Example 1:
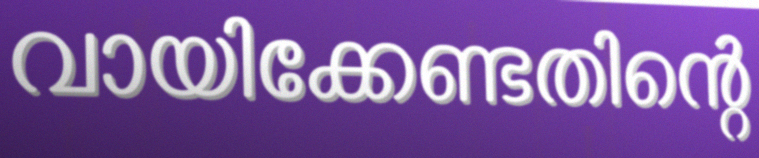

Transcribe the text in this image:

വായിക്കേണ്ടതിന്റെ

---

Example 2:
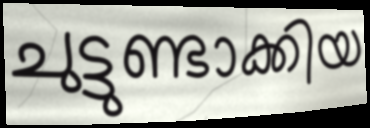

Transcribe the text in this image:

ചുട്ടുണ്ടാക്കിയ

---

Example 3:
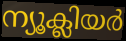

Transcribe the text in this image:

ന്യൂക്ലിയർ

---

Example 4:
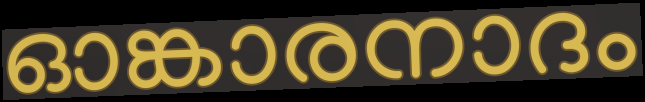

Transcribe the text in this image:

ഓങ്കാരനാദം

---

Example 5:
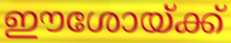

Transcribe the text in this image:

ഈശോയ്ക്ക്